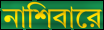
নাশিবারে